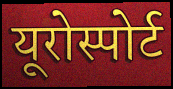
यूरोस्पोर्ट